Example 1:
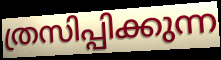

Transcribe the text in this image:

ത്രസിപ്പിക്കുന്ന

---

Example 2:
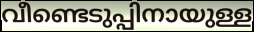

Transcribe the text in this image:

വീണ്ടെടുപ്പിനായുള്ള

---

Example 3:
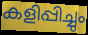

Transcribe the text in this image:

കളിപ്പിച്ചും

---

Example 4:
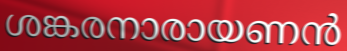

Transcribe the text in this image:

ശങ്കരനാരായണൻ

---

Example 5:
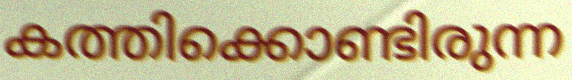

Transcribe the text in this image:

കത്തിക്കൊണ്ടിരുന്ന